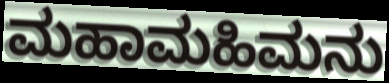
ಮಹಾಮಹಿಮನು